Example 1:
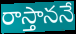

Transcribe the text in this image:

రాస్తాననే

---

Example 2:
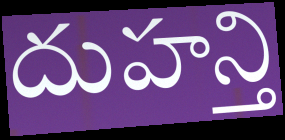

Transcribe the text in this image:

దుహన్తి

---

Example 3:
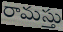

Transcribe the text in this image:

రామస్తు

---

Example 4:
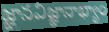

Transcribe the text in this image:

జ్ఞానవిజ్ఞానాభ్యాం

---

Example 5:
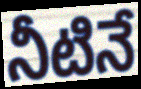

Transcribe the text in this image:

నీటినే